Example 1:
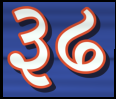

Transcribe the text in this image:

રૂઢ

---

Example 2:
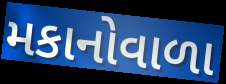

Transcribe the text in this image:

મકાનોવાળા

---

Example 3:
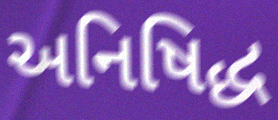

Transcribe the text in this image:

અનિષિદ્ધ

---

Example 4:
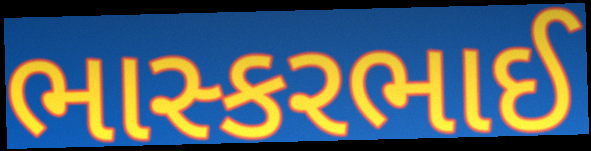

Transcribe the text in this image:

ભાસ્કરભાઈ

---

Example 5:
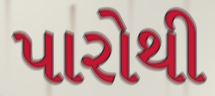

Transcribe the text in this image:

પારોથી